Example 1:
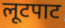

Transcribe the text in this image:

लूटपाट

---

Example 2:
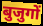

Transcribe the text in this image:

बुजुगों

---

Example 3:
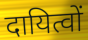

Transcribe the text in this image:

दायित्वों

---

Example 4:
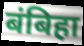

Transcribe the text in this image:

बंबिहा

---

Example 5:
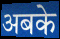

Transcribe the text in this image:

अबके